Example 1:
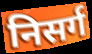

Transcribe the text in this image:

निसर्ग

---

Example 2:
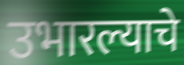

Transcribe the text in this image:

उभारल्याचे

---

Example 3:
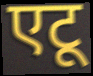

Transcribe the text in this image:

एटू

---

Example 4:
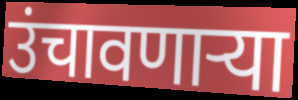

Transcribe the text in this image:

उंचावणाऱ्या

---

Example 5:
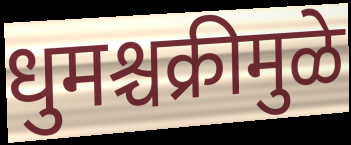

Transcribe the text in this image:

धुमश्चक्रीमुळे